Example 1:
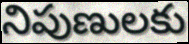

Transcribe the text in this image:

నిపుణులకు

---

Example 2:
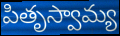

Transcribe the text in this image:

పితృస్వామ్య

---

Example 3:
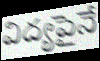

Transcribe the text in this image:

విద్యపైనే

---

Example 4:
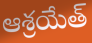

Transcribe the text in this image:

ఆశ్రయేత్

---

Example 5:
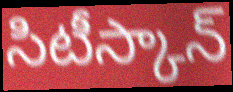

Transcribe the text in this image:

సిటీస్కాన్